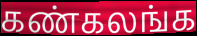
கண்கலங்க